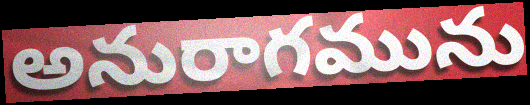
అనురాగమును